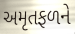
અમૃતફળને